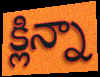
క్లిన్నా